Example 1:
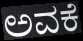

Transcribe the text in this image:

ಅವಕೆ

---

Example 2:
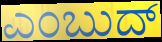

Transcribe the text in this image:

ಎಂಬುದ್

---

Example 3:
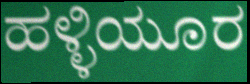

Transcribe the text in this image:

ಹಳ್ಳಿಯೂರ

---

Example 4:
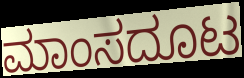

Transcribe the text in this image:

ಮಾಂಸದೂಟ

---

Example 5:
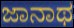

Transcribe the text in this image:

ಜಾನಾಥ